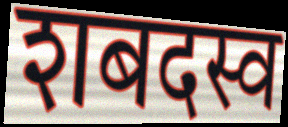
शबदस्व